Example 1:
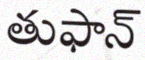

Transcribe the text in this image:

తుఫాన్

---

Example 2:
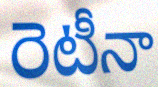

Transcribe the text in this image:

రెటీనా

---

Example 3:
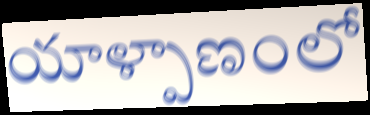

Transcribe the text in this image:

యాళ్పాణంలో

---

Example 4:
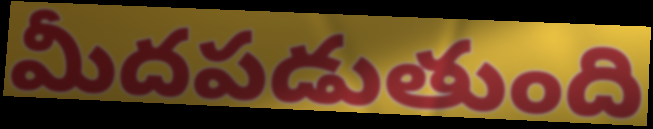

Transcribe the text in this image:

మీదపడుతుంది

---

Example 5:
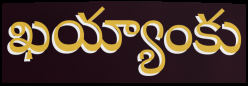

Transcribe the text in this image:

ఖయ్యాంకు